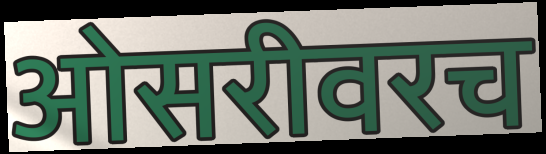
ओसरीवरच